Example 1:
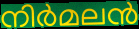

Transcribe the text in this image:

നിർമലൻ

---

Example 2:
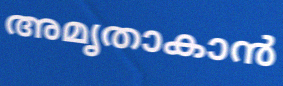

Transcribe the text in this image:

അമൃതാകാൻ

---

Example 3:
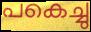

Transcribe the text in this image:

പകെച്ചു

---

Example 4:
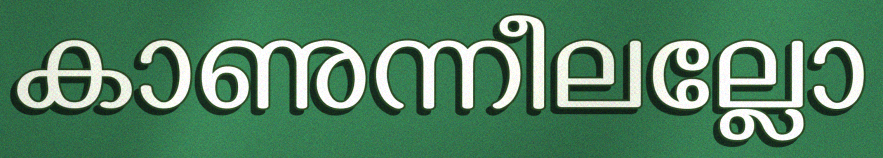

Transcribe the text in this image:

കാണുന്നീലല്ലോ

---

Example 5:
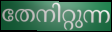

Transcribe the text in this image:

തേനിറ്റുന്ന